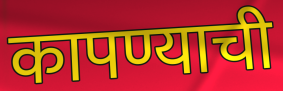
कापण्याची